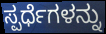
ಸ್ಪರ್ಧೆಗಳನ್ನು